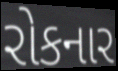
રોકનાર